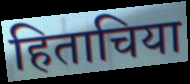
हिताचिया